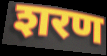
शरण